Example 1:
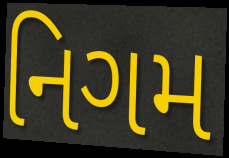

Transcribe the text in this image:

નિગમ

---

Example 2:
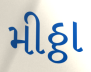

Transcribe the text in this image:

મીઠ્ઠા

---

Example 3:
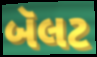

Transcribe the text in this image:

બૅલટ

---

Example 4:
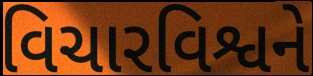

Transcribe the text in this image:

વિચારવિશ્વને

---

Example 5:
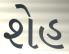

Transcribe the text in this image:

શેહ